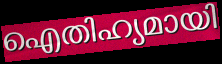
ഐതിഹ്യമായി